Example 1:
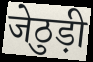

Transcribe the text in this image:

जेठुड़ी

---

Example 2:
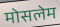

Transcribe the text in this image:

मोसलेम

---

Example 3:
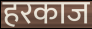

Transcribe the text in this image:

हरकाज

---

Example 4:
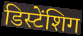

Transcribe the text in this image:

डिस्टेंशिग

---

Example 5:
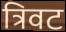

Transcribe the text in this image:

त्रिवट